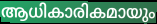
ആധികാരികമായും